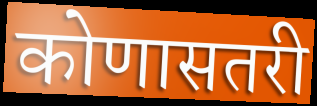
कोणासतरी